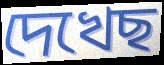
দেখেছ